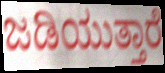
ಜಡಿಯುತ್ತಾರೆ